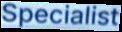
Specialist